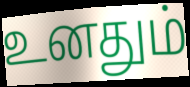
உனதும்